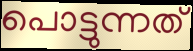
പൊട്ടുന്നത്